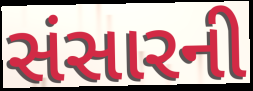
સંસારની